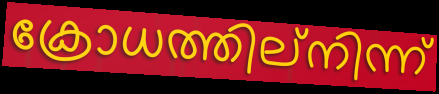
ക്രോധത്തില്നിന്ന്